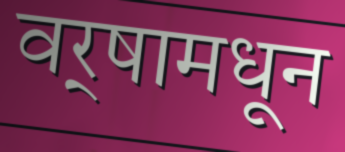
वर्षामधून